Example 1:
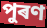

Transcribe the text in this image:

পুৰণ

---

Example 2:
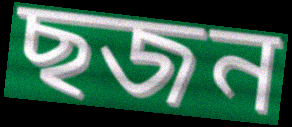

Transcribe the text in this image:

ছজন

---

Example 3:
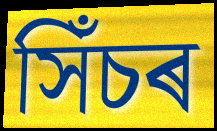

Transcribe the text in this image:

সিঁচৰ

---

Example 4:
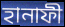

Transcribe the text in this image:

হানাফী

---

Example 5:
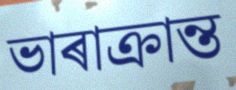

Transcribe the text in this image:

ভাৰাক্ৰান্ত